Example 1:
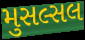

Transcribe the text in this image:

મુસલ્સલ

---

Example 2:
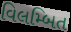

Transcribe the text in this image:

વિલમ્બિત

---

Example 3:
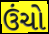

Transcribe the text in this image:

ઉંચો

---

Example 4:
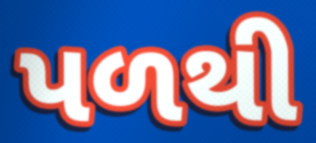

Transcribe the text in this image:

પળથી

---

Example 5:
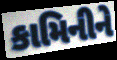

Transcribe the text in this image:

કામિનીને